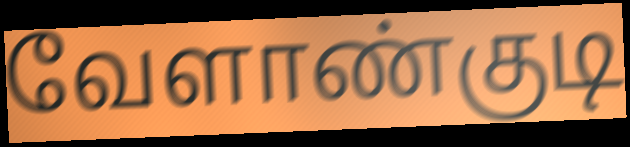
வேளாண்குடி